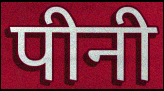
पीनी